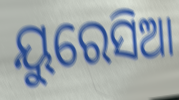
ୟୁରେସିଆ